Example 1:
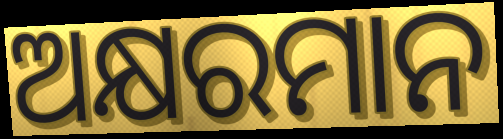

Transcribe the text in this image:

ଅକ୍ଷରମାନ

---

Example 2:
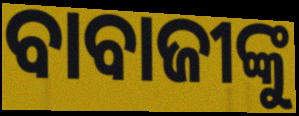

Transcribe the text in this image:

ବାବାଜୀଙ୍କୁ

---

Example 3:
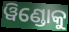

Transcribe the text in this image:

ୱିଣ୍ଡୋକୁ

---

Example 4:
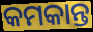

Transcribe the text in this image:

କମକାନ୍ତ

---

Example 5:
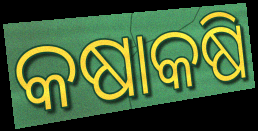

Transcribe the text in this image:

କଷାକଷି